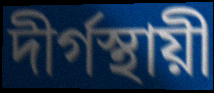
দীর্গস্থায়ী